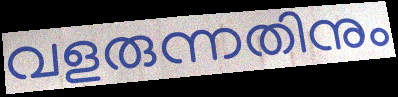
വളരുന്നതിനും